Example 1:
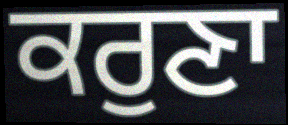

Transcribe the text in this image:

ਕਰੁਣਾ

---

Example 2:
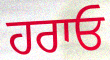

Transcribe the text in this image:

ਹਰਾਓ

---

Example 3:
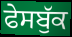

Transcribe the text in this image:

ਫੇਸਬੁੱਕ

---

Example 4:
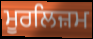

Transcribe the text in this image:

ਮੂਰਲਿਜ਼ਮ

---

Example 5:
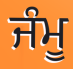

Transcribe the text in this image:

ਜੰਮੂ